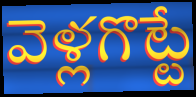
వెళ్లగొట్టే